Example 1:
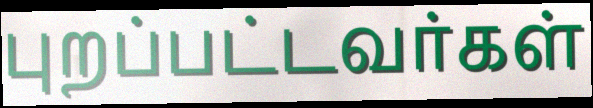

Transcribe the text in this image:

புறப்பட்டவர்கள்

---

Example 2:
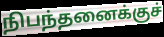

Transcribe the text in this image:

நிபந்தனைக்குச்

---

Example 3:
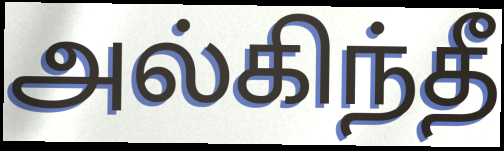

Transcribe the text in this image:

அல்கிந்தீ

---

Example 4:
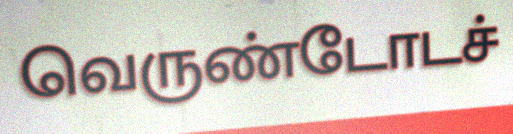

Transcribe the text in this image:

வெருண்டோடச்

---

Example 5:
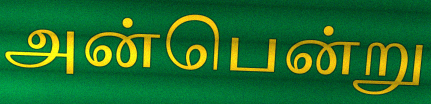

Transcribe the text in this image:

அன்பென்று